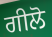
ਗੀਲੋ